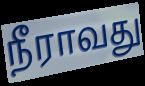
நீராவது